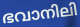
ഭവാനിലി